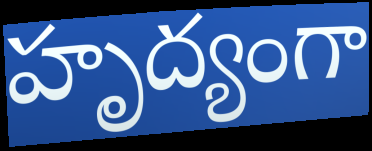
హృద్యంగా